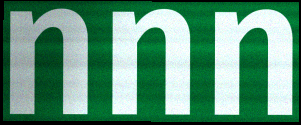
nnn